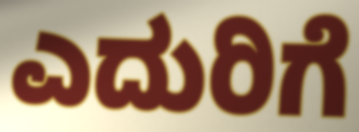
ಎದುರಿಗೆ